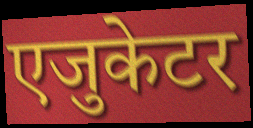
एजुकेटर